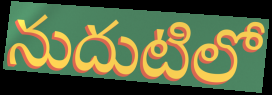
నుదుటిలో